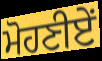
ਮੋਹਣੀਏਂ